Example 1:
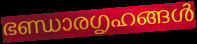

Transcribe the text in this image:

ഭണ്ഡാരഗൃഹങ്ങൾ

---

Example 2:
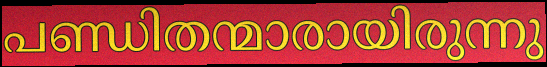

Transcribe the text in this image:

പണ്ഡിതന്മാരായിരുന്നു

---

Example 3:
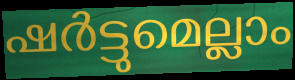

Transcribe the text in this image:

ഷർട്ടുമെല്ലാം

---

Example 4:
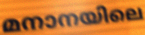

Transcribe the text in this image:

മനാനയിലെ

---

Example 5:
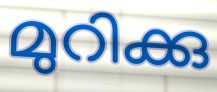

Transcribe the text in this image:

മുറിക്കു